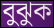
বুঝুক